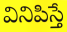
వినిపిస్తే